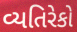
વ્યતિરેકો